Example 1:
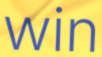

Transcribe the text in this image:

win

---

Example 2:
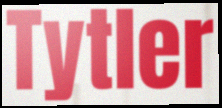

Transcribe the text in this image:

Tytler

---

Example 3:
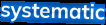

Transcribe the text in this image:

systematic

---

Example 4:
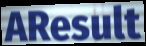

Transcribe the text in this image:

AResult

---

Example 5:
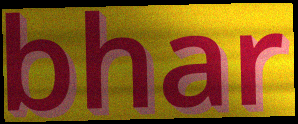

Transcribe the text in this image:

bhar